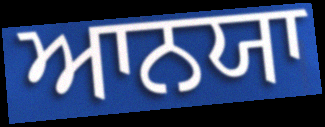
ਆਨਯਾ